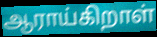
ஆராய்கிறாள்